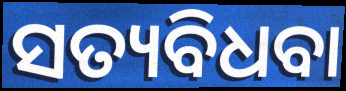
ସତ୍ୟବିଧବା